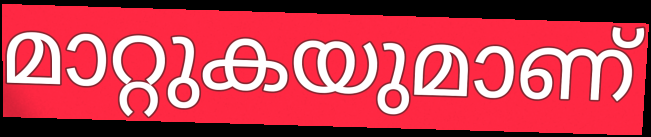
മാറ്റുകയുമാണ്